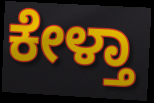
ಕೇಳ್ತಾ